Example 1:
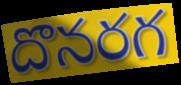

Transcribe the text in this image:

దొనరగ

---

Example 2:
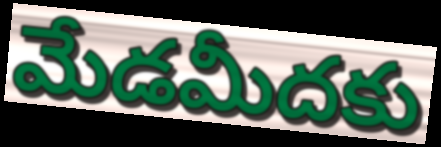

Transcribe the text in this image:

మేడమీదకు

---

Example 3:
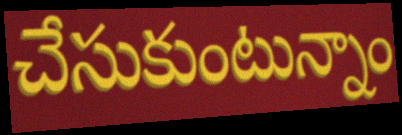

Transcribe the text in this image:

చేసుకుంటున్నాం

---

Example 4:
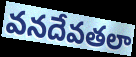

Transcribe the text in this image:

వనదేవతలా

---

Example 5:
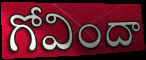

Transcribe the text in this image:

గోవిందా